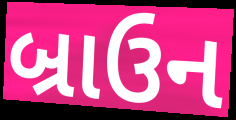
બ્રાઉન